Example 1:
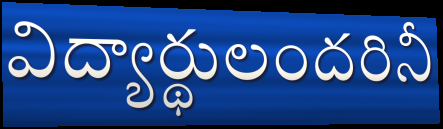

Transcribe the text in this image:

విద్యార్థులందరినీ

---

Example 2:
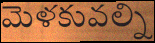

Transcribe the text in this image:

మెళకువల్ని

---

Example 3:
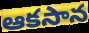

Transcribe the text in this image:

ఆకసాన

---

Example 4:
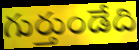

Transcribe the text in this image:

గుర్తుండేది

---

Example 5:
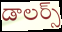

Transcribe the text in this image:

డాలర్స్